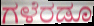
ಗಳೆರಡೂ